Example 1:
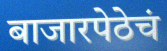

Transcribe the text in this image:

बाजारपेठेचं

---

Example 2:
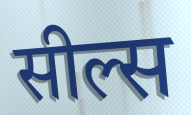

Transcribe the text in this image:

सील्स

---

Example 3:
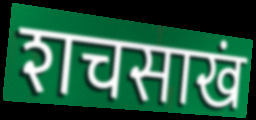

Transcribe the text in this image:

शचसाखं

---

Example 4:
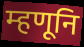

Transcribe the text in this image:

म्हणूनि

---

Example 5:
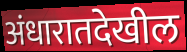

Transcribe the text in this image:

अंधारातदेखील